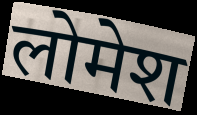
लोमेश